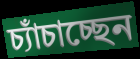
চ্যাঁচাচ্ছেন